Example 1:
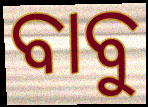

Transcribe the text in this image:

ବାବୁ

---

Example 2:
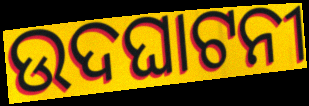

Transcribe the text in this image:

ଉଦଘାଟନୀ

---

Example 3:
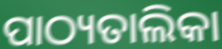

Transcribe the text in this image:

ପାଠ୍ୟତାଲିକା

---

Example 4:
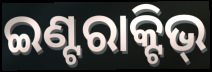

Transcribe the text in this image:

ଇଣ୍ଟରାକ୍ଟିଭ୍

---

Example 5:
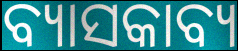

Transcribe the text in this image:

ବ୍ୟାସକାବ୍ୟ